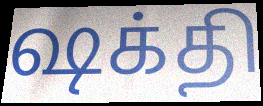
ஷக்தி